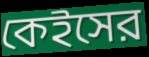
কেইসের